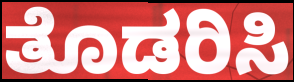
ತೊಡರಿಸಿ